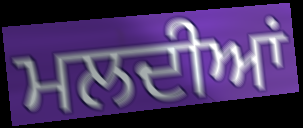
ਮਲਦੀਆਂ